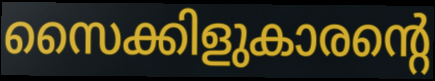
സൈക്കിളുകാരന്റെ